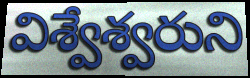
విశ్వేశ్వరుని